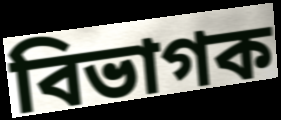
বিভাগক